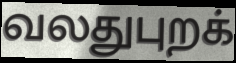
வலதுபுறக்